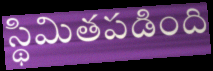
స్థిమితపడింది